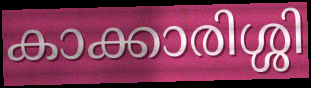
കാക്കാരിശ്ശി